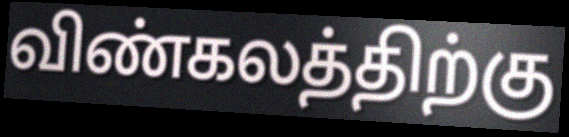
விண்கலத்திற்கு